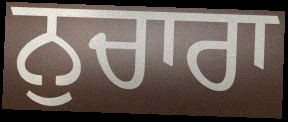
ਨੁਚਾਰਾ